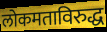
लोकमताविरुद्ध